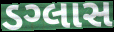
ડગ્લાસ